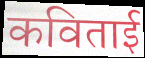
कविताई